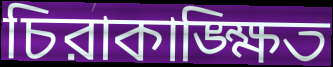
চিরাকাঙ্ক্ষিত